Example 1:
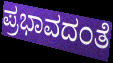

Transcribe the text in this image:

ಪ್ರಭಾವದಂತೆ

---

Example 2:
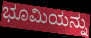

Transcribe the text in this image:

ಭೂಮಿಯನ್ನು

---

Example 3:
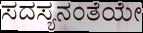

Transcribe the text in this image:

ಸದಸ್ಯನಂತೆಯೇ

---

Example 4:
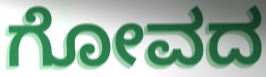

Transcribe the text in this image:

ಗೋವದ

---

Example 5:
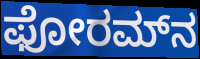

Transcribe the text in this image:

ಫೋರಮ್‌ನ